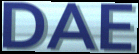
DAE